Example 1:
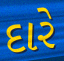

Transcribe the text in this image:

દારે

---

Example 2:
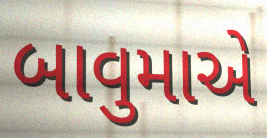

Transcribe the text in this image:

બાવુમાએ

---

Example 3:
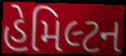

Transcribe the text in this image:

હેમિલ્ટન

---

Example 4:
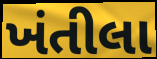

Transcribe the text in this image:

ખંતીલા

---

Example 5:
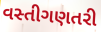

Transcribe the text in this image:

વસ્તીગણતરી